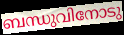
ബന്ധുവിനോടു